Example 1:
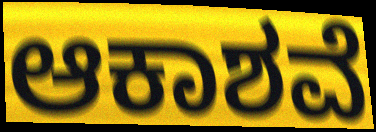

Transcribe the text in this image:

ಆಕಾಶವೆ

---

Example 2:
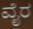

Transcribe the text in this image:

ವೈರ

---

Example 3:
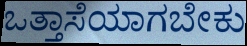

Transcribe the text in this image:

ಒತ್ತಾಸೆಯಾಗಬೇಕು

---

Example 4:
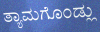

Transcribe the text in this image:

ತ್ಯಾಮಗೊಂಡ್ಲು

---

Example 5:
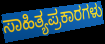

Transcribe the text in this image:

ಸಾಹಿತ್ಯಪ್ರಕಾರಗಳು